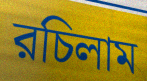
রচিলাম